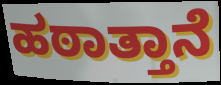
ಹಠಾತ್ತಾನೆ